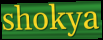
shokya